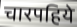
चारपहिये